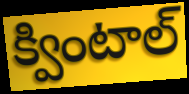
క్వింటాల్